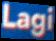
Lagi